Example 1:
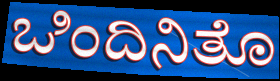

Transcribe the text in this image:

ಒಿಂದಿನಿತೊ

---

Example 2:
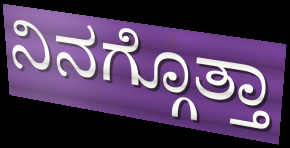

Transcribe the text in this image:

ನಿನಗ್ಗೊತ್ತಾ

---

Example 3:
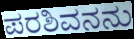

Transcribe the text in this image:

ಪರಶಿವನನು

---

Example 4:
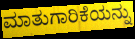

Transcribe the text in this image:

ಮಾತುಗಾರಿಕೆಯನ್ನು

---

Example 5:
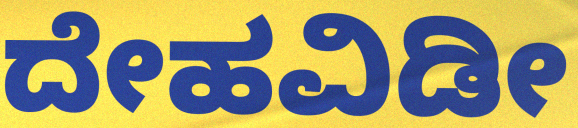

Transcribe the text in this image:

ದೇಹವಿಡೀ